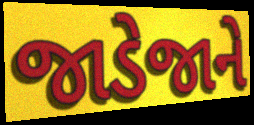
જાડેજાને